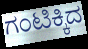
ಗಂಟಿಕ್ಕಿದ